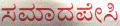
ಸಮಾದಪೇಸಿ